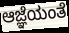
ಆಜ್ಞೆಯಂತೆ